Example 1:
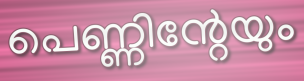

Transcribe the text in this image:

പെണ്ണിന്റേയും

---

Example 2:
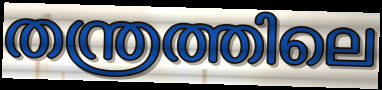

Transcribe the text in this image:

തന്ത്രത്തിലെ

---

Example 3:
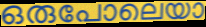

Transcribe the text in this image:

ഒരുപോലെയാ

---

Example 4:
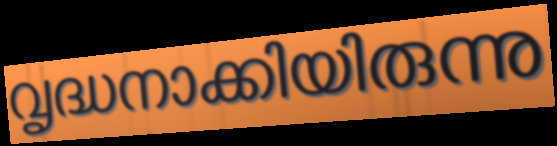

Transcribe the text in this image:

വൃദ്ധനാക്കിയിരുന്നു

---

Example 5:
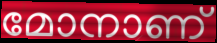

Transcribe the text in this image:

മോനാണ്